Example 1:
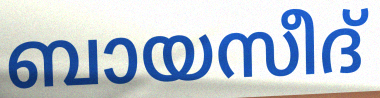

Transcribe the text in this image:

ബായസീദ്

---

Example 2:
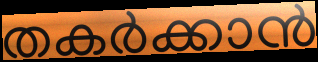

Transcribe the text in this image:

തകർക്കാൻ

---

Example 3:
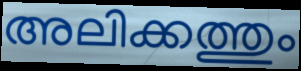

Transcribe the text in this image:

അലിക്കത്തും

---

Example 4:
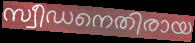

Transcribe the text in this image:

സ്വീഡനെതിരായ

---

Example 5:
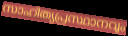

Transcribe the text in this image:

സാഹിത്യപ്രസ്ഥാനവും